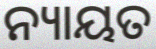
ନ୍ୟାୟତ